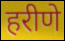
हरीणे